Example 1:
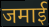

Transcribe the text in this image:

जमाई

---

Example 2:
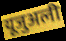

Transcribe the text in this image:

यूजुअली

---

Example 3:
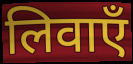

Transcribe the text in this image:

लिवाएँ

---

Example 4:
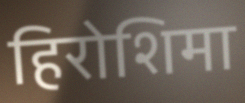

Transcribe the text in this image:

हिरोशिमा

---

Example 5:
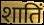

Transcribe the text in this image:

शातिं